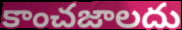
కాంచజాలదు